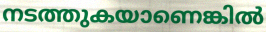
നടത്തുകയാണെങ്കിൽ